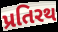
પ્રતિરથ